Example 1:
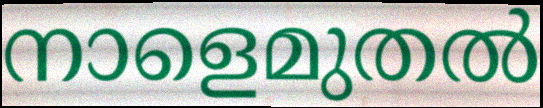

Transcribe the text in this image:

നാളെമുതൽ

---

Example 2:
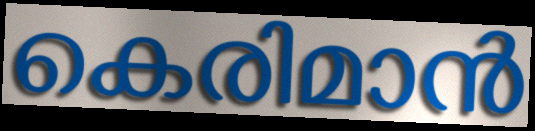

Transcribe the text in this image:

കെരിമാൻ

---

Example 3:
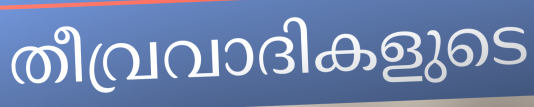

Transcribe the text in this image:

തീവ്രവാദികളുടെ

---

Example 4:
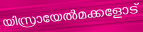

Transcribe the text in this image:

യിസ്രായേൽമക്കളോട്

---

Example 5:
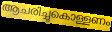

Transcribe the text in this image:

ആചരിച്ചുകൊള്ളണം